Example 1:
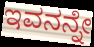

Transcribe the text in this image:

ಇವನನ್ನೇ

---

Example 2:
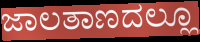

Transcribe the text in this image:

ಜಾಲತಾಣದಲ್ಲೂ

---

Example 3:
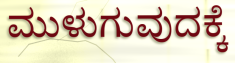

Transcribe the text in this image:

ಮುಳುಗುವುದಕ್ಕೆ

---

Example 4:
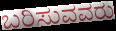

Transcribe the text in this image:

ಬರಿಸುವವರು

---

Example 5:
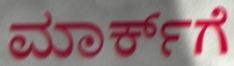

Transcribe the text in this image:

ಮಾರ್ಕ್‌ಗೆ